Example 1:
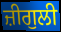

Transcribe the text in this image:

ਜ਼ੀਗੁਲੀ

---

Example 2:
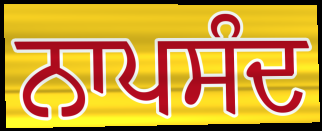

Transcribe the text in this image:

ਨਾਪਸੰਦ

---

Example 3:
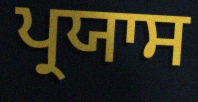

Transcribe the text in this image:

ਪ੍ਰਯਾਸ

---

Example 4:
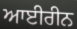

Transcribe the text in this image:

ਆਈਰੀਨ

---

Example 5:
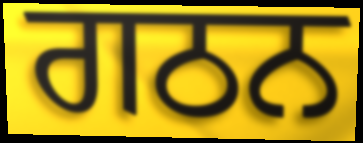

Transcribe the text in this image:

ਗਠਨ